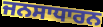
ਜਨਸਾਧਾਰਨ